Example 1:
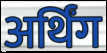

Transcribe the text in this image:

अर्थिंग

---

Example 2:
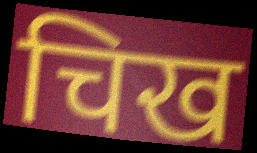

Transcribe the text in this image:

चिख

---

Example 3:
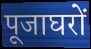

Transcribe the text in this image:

पूजाघरों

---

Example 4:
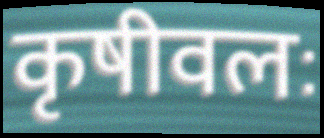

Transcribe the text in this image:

कृषीवलः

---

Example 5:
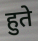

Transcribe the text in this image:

हुते